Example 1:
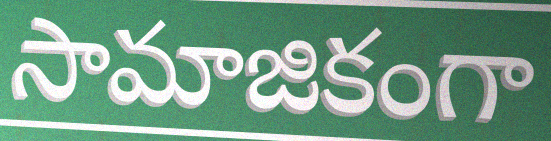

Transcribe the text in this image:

సామాజికంగా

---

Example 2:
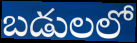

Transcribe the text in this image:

బడులలో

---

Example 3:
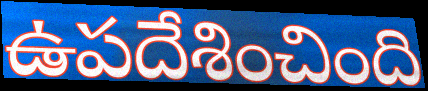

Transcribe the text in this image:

ఉపదేశించింది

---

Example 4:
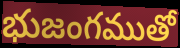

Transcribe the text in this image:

భుజంగముతో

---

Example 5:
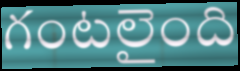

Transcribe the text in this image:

గంటలైంది